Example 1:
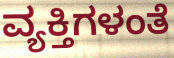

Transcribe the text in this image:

ವ್ಯಕ್ತಿಗಳಂತೆ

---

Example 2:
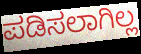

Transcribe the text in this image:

ಪಡಿಸಲಾಗಿಲ್ಲ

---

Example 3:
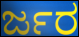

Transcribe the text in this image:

ರ್ಜರ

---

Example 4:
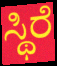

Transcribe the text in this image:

ಸ್ಥಿರೆ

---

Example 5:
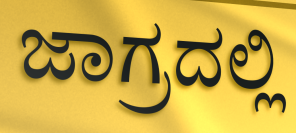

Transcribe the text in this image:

ಜಾಗ್ರದಲ್ಲಿ